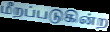
மீறப்படுகின்ற